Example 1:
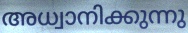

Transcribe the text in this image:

അധ്വാനിക്കുന്നു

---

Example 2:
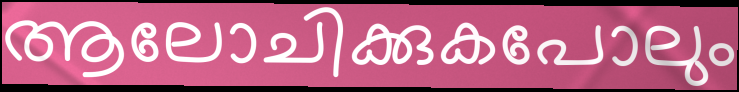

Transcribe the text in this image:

ആലോചിക്കുകപോലും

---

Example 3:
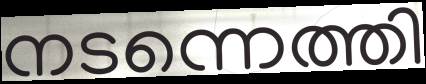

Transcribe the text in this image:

നടന്നെത്തി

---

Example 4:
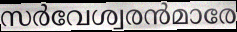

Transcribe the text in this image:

സർവേശ്വരൻമാരേ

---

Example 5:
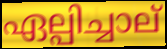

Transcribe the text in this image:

ഏല്പിച്ചാല്